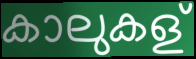
കാലുകള്